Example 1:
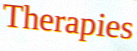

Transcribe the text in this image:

Therapies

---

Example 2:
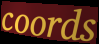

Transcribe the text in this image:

coords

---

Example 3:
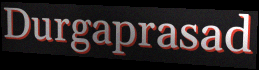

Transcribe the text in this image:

Durgaprasad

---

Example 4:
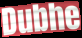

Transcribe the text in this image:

Dubhe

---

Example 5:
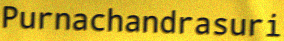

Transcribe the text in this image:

Purnachandrasuri